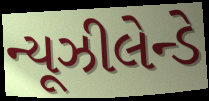
ન્યૂઝીલેન્ડે